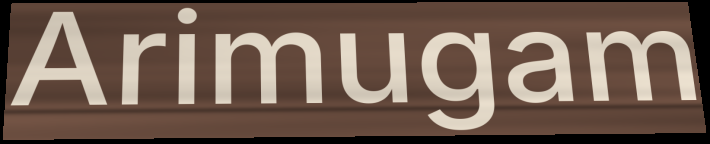
Arimugam